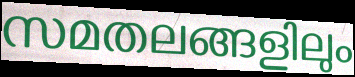
സമതലങ്ങളിലും